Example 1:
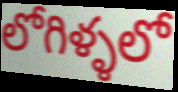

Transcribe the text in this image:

లోగిళ్ళలో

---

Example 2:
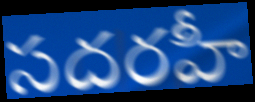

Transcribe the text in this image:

సదరహీ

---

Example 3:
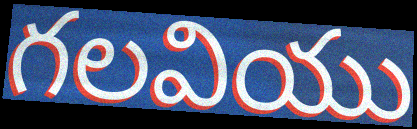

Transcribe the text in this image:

గలవియు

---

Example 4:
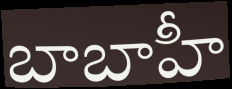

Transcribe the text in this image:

బాబాహీ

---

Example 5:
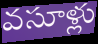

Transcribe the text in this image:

వసూళ్లు